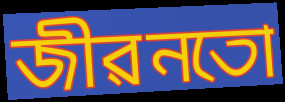
জীৱনতো